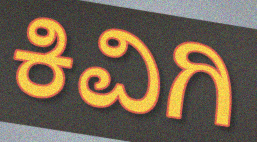
ಕಿವಿಗಿ